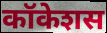
कॉकेशस